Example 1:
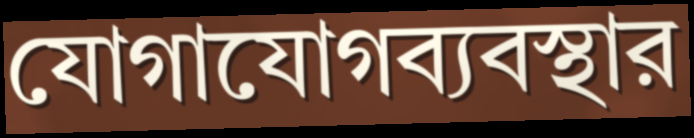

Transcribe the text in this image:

যোগাযোগব্যবস্থার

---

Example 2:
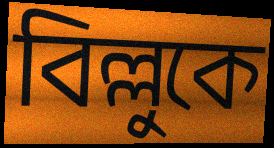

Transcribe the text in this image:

বিল্লুকে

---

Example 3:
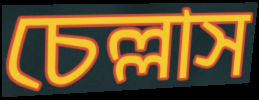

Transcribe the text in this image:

চেল্লাস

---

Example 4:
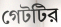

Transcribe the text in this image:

গেটটির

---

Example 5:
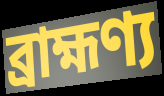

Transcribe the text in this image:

ব্রাহ্মণ্য